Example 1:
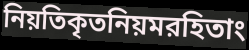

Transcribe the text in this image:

নিয়তিকৃতনিয়মরহিতাং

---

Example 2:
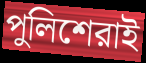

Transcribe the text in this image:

পুলিশেরাই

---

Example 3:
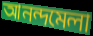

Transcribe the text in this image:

আনন্দমেলা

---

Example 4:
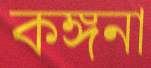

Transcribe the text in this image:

কঙ্গনা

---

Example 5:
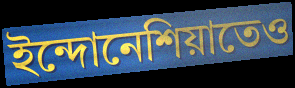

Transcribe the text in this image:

ইন্দোনেশিয়াতেও